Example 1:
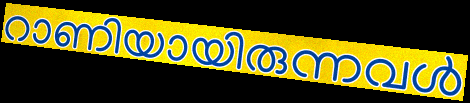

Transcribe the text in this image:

റാണിയായിരുന്നവൾ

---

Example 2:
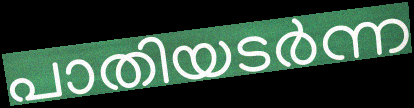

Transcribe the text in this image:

പാതിയടർന്ന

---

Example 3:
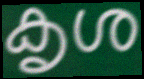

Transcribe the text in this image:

കൃശ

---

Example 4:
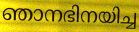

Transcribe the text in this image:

ഞാനഭിനയിച്ച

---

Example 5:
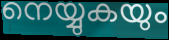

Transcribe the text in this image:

നെയ്യുകയും